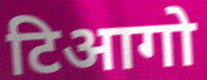
टिआगो